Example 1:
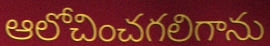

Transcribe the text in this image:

ఆలోచించగలిగాను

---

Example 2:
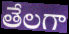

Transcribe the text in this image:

తేలగా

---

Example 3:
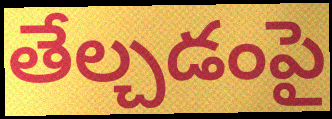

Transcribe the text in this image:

తేల్చడంపై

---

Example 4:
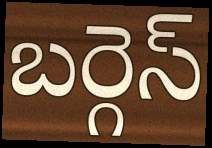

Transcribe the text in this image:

బర్గెస్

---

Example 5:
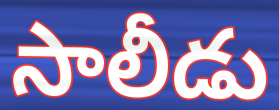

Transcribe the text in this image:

సాలీడు